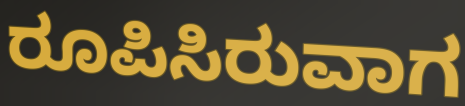
ರೂಪಿಸಿರುವಾಗ